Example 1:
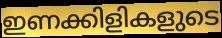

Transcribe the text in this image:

ഇണക്കിളികളുടെ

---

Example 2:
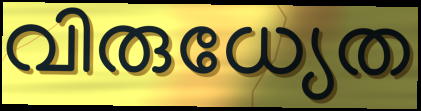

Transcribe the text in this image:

വിരുധ്യേത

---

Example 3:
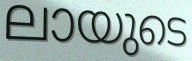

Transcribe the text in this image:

ലായുടെ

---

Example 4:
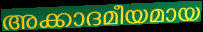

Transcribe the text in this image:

അക്കാദമീയമായ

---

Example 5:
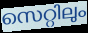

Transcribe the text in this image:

സെറ്റിലും